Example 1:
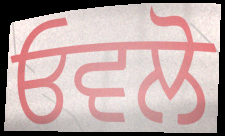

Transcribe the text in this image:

ਓਵਲੋ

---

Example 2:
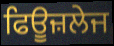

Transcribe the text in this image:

ਫਿਊਜ਼ਲੇਜ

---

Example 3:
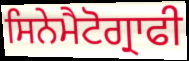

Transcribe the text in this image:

ਸਿਨੇਮੈਟੋਗ੍ਰਾਫੀ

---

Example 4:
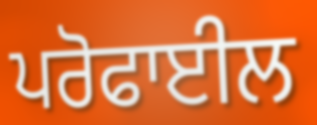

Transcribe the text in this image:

ਪਰੋਫਾਈਲ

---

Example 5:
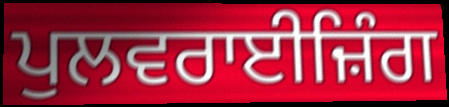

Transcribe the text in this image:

ਪੁਲਵਰਾਈਜ਼ਿੰਗ